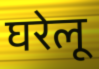
घरेलू